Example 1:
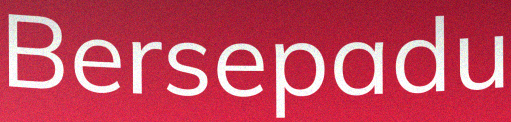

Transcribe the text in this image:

Bersepadu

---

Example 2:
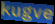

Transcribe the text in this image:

kugve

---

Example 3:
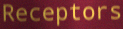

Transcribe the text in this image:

Receptors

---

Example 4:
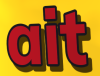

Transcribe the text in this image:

ait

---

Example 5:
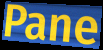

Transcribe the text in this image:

Pane